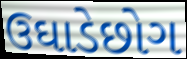
ઉઘાડેછોગ